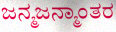
ಜನ್ಮಜನ್ಮಾಂತರ